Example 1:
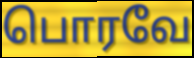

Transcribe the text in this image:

பொரவே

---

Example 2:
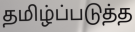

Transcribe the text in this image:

தமிழ்ப்படுத்த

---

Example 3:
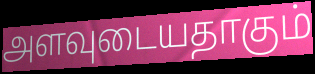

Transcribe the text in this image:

அளவுடையதாகும்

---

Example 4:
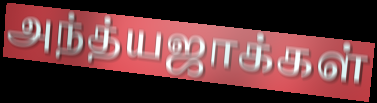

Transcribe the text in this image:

அந்த்யஜாக்கள்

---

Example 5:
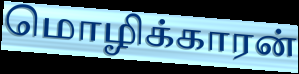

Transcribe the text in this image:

மொழிக்காரன்